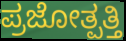
ಪ್ರಜೋತ್ಪತ್ತಿ